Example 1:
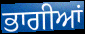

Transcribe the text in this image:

ਭਾਗੀਆਂ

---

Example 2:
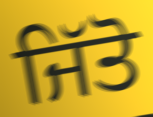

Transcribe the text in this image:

ਜਿੱਤੋ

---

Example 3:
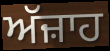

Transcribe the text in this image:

ਅੱਜ਼ਾਹ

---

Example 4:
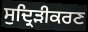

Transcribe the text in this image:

ਸੁਦ੍ਰਿੜੀਕਰਣ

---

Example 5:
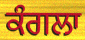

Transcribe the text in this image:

ਕੰਗਲਾ